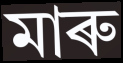
মাৰু